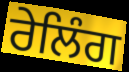
ਰੇਲਿੰਗ